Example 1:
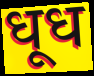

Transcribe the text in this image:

धूध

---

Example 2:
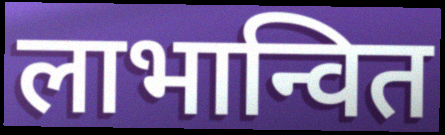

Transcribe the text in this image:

लाभान्वित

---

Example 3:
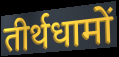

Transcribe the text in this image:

तीर्थधामों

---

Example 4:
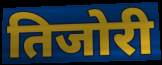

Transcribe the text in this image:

तिजोरी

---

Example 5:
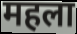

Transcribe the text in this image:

महला